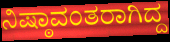
ನಿಷ್ಠಾವಂತರಾಗಿದ್ದ